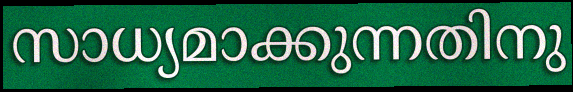
സാധ്യമാക്കുന്നതിനു